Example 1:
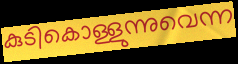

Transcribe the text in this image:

കുടികൊള്ളുന്നുവെന്ന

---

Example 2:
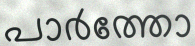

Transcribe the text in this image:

പാർത്തോ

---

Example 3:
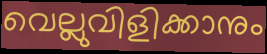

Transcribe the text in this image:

വെല്ലുവിളിക്കാനും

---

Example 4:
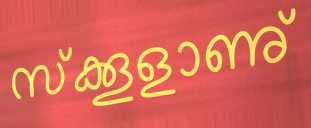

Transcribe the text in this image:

സ്ക്കൂളാണു്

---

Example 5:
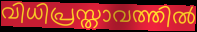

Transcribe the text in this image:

വിധിപ്രസ്താവത്തിൽ